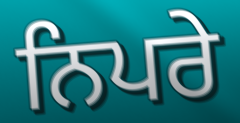
ਨਿਪਰੇ